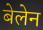
बेलेन